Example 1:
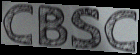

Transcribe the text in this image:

CBSC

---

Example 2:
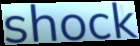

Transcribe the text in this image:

shock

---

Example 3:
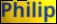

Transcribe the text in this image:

Philip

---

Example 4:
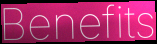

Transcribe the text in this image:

Benefits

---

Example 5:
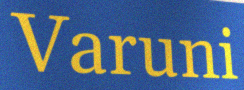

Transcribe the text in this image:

Varuni